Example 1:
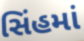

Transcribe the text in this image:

સિંહમાં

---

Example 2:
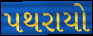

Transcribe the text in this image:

પથરાયો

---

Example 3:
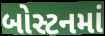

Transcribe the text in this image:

બોસ્ટનમાં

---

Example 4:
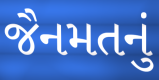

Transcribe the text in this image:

જૈનમતનું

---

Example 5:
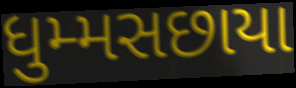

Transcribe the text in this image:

ધુમ્મસછાયા